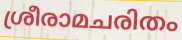
ശ്രീരാമചരിതം